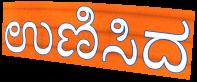
ಉಣಿಸಿದ